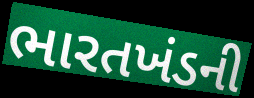
ભારતખંડની